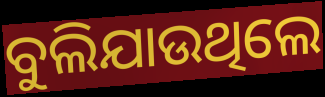
ବୁଲିଯାଉଥିଲେ